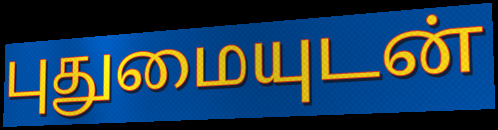
புதுமையுடன்